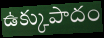
ఉక్కుపాదం